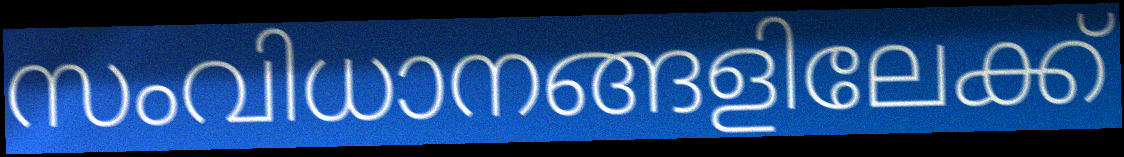
സംവിധാനങ്ങളിലേക്ക്